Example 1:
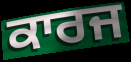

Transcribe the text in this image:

ਕਾਰਜ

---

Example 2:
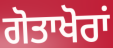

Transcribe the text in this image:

ਗੋਤਾਖੋਰਾਂ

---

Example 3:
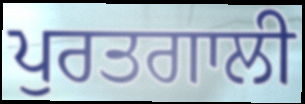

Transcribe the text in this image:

ਪੁਰਤਗਾਲੀ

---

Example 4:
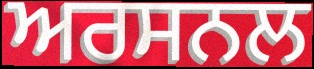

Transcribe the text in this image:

ਅਰਸਨਲ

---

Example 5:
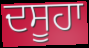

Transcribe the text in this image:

ਦਸੂਹਾ